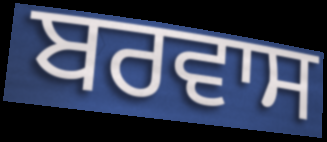
ਬਰਵਾਸ